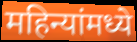
महिन्यांमध्ये